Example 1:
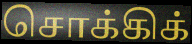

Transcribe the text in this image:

சொக்கிக்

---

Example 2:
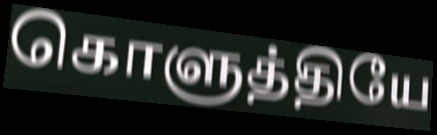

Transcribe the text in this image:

கொளுத்தியே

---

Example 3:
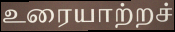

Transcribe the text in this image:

உரையாற்றச்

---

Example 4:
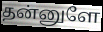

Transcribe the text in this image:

தன்னுளே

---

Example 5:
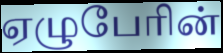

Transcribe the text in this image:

ஏழுபேரின்